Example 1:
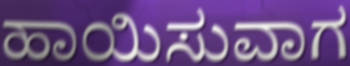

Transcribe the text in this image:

ಹಾಯಿಸುವಾಗ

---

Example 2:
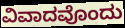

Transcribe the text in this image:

ವಿವಾದವೊಂದು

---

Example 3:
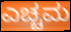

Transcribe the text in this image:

ಎಚ್ಚಮ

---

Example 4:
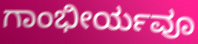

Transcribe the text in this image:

ಗಾಂಭೀರ್ಯವೂ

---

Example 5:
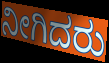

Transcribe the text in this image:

ನೀಗಿದರು